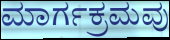
ಮಾರ್ಗಕ್ರಮವು